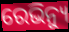
ରେଭିନ୍ୟୁ